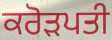
ਕਰੋੜਪਤੀ